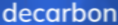
decarbon